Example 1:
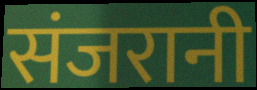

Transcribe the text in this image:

संजरानी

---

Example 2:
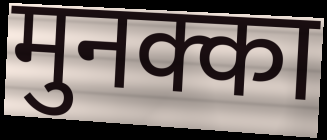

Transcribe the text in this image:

मुनक्का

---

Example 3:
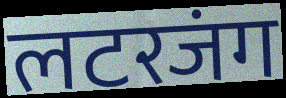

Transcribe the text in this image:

लटरजंग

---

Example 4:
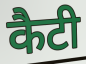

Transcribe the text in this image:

कैटी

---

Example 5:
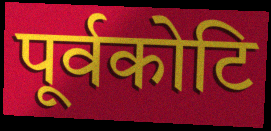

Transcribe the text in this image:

पूर्वकोटि